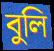
বুলি